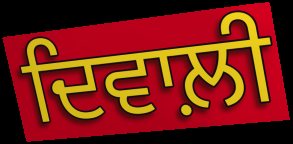
ਦਿਵਾਲ਼ੀ